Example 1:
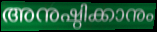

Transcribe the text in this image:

അനുഷ്ഠിക്കാനും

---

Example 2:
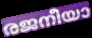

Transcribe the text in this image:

രജനീയാ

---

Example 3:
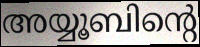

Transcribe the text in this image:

അയ്യൂബിന്റെ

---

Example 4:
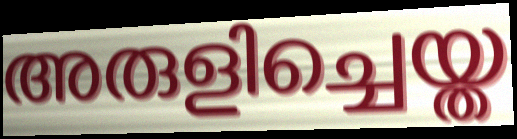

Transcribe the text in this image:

അരുളിച്ചെയ്ത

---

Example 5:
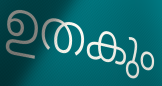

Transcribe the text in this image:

ഉതകും